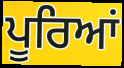
ਪੂਰਿਆਂ